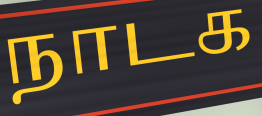
நாடக